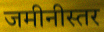
जमीनीस्तर